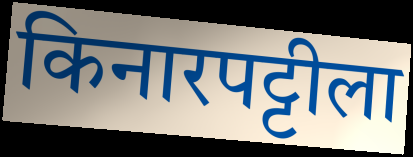
किनारपट्टीला